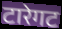
टारेगट